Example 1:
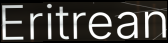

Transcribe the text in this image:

Eritrean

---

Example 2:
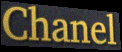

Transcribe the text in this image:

Chanel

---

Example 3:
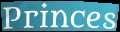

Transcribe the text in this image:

Princes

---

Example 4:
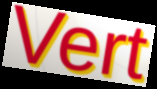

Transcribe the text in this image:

Vert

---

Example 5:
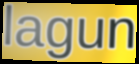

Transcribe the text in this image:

lagun